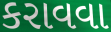
કરાવવા